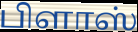
பிளாஸ்